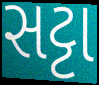
સટ્ટા